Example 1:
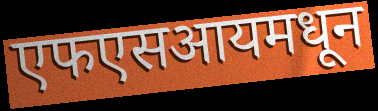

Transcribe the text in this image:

एफएसआयमधून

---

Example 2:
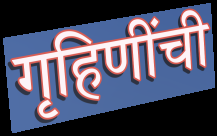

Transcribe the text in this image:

गृहिणींची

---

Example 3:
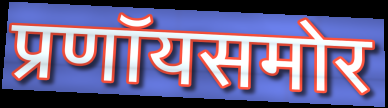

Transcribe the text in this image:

प्रणॉयसमोर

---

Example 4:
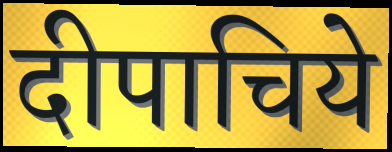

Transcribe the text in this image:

दीपाचिये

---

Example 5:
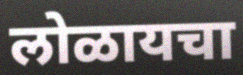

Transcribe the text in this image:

लोळायचा